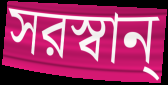
সরস্বান্